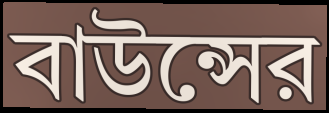
বাউন্সের